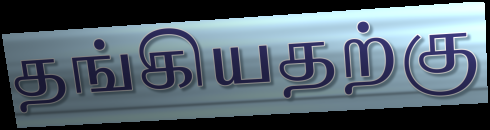
தங்கியதற்கு